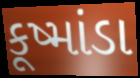
કૂષ્માંડા